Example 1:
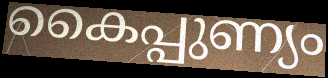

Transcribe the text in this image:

കൈപ്പുണ്യം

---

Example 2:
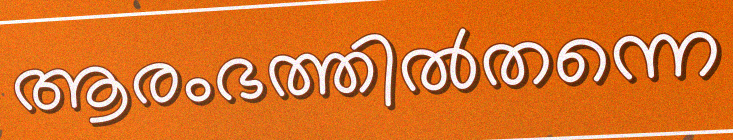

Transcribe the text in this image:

ആരംഭത്തിൽതന്നെ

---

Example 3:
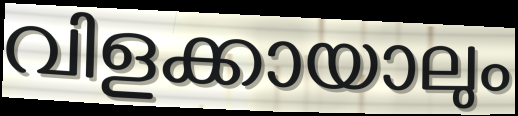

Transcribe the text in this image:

വിളക്കായാലും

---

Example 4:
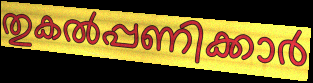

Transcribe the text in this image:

തുകൽപ്പണിക്കാർ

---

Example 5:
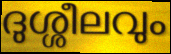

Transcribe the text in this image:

ദുശ്ശീലവും